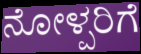
ನೋಳ್ಪರಿಗೆ